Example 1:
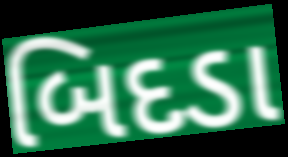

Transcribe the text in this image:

બિદડા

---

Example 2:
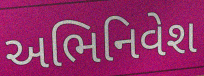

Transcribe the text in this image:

અભિનિવેશ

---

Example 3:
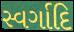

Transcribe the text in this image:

સ્વર્ગાદિ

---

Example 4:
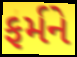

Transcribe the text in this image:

ફર્મને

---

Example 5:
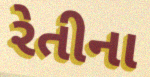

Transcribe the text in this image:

રેતીના